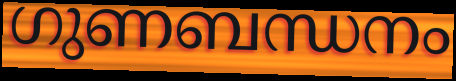
ഗുണബന്ധനം